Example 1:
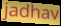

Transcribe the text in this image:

jadhav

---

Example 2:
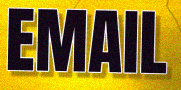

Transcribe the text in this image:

EMAIL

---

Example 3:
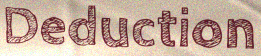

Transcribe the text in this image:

Deduction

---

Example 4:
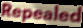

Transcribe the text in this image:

Repealed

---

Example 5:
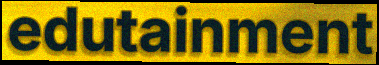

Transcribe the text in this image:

edutainment